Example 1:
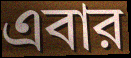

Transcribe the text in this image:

এবার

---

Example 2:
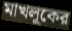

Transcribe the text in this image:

মাখলূকের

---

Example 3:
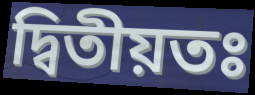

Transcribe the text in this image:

দ্বিতীয়তঃ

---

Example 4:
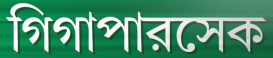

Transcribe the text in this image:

গিগাপারসেক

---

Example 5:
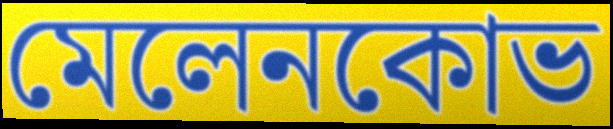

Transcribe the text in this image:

মেলেনকোভ